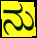
ನು